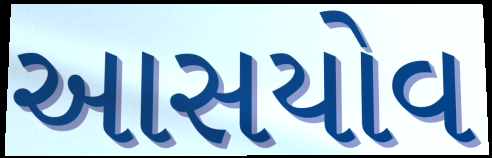
આસયોવ